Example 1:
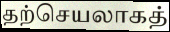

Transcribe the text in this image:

தற்செயலாகத்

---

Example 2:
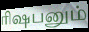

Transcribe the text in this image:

ரிஷபனும்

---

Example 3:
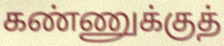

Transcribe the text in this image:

கண்ணுக்குத்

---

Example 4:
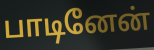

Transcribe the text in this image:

பாடினேன்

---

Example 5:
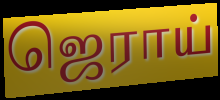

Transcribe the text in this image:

ஜெராய்